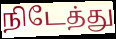
நிடேத்து